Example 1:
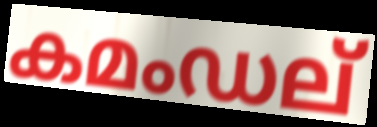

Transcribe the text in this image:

കമംഡല്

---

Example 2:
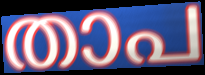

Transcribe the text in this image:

താപ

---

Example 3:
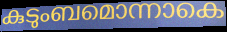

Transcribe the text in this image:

കുടുംബമൊന്നാകെ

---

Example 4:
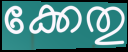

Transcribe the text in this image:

ക്കേതു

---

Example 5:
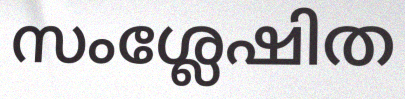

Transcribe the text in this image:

സംശ്ലേഷിത